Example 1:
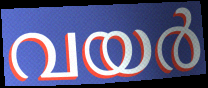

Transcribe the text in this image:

വയർ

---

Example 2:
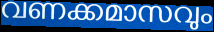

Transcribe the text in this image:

വണക്കമാസവും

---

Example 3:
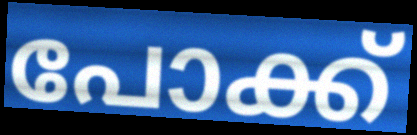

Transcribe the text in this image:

പോക്ക്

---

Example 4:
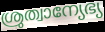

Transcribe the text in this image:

ശ്രുത്വാന്യേഭ്യ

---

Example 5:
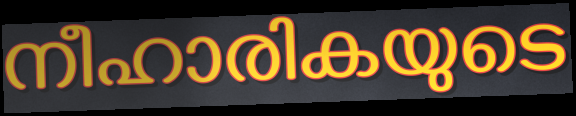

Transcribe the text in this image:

നീഹാരികയുടെ